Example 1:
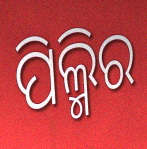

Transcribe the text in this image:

ପିଲ୍ମିର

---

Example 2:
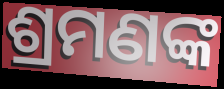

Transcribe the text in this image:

ଶ୍ରମଣଙ୍କ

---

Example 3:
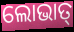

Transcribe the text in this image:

ଲୋଭାତ୍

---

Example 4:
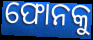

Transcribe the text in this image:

ଫୋନକୁ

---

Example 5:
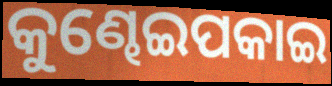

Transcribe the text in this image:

କୁଣ୍ଢେଇପକାଇ